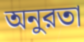
অনুরতা